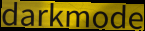
darkmode